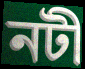
নটী